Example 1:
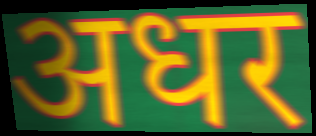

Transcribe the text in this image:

अधर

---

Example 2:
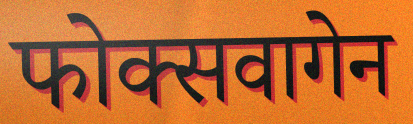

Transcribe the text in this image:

फोक्सवागेन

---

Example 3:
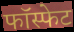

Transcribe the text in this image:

फॉस्फेट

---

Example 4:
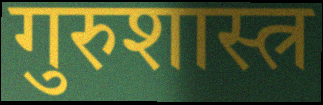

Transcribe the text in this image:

गुरुशास्त्र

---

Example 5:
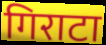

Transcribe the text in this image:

गिराटा